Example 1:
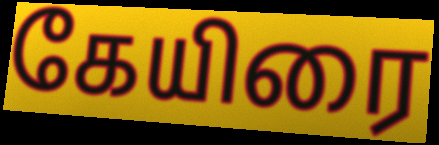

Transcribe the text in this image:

கேயிரை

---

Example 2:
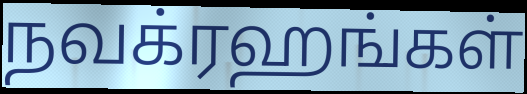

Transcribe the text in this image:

நவக்ரஹங்கள்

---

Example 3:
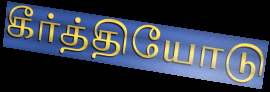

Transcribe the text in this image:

கீர்த்தியோடு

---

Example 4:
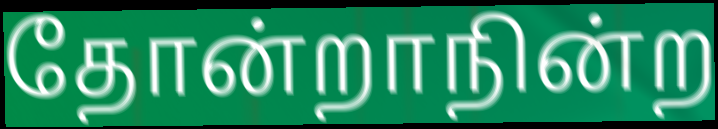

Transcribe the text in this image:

தோன்றாநின்ற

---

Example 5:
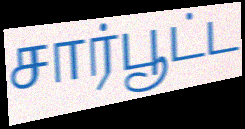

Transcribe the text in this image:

சார்பூட்ட